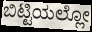
ಬಿಟ್ಟಿಯಲ್ಲೋ